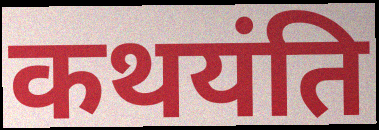
कथयंति